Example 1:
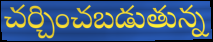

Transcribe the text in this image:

చర్చించబడుతున్న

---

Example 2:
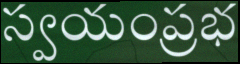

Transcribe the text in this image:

స్వయంప్రభ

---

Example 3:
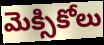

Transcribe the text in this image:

మెక్సికోలు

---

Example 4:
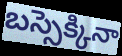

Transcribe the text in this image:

బస్సెక్కినా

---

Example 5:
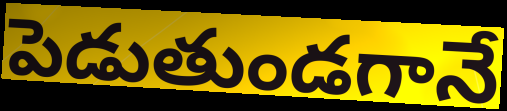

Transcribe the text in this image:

పెడుతుండగానే